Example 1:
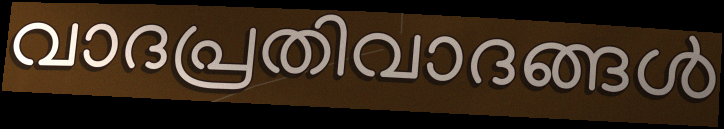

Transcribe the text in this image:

വാദപ്രതിവാദങ്ങൾ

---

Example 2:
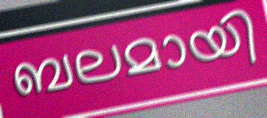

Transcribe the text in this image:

ബലമായി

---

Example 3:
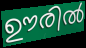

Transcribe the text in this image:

ഊരിൽ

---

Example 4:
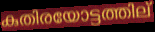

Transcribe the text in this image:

കുതിരയോട്ടത്തില്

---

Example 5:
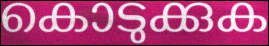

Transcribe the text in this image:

കൊടുക്കുക